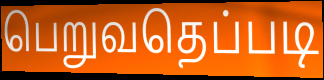
பெறுவதெப்படி